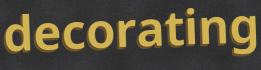
decorating